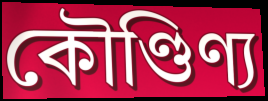
কৌণ্ডিণ্য